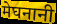
मेघनानी